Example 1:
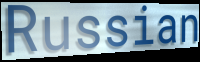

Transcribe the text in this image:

Russian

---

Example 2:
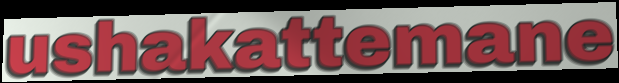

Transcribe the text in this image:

ushakattemane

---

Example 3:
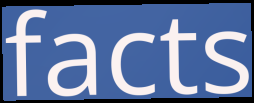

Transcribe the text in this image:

facts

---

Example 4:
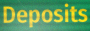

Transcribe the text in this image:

Deposits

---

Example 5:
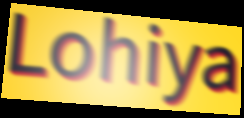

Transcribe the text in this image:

Lohiya